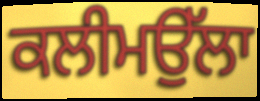
ਕਲੀਮਉੱਲਾ